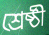
শ্রেষ্ঠী